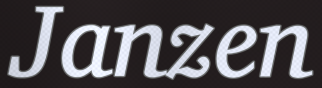
Janzen